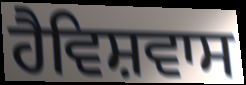
ਹੈਵਿਸ਼ਵਾਸ